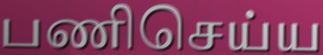
பணிசெய்ய